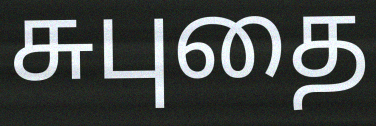
சுபுதை